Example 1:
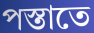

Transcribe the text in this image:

পস্তাতে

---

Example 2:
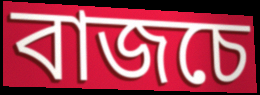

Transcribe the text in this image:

বাজচে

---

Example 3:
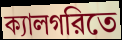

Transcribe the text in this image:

ক্যালগরিতে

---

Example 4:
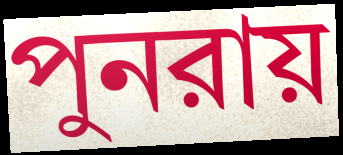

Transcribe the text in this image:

পুনরায়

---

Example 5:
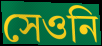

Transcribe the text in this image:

সেওনি